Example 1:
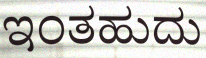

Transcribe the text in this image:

ಇಂತಹುದು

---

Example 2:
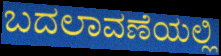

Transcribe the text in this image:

ಬದಲಾವಣೆಯಲ್ಲಿ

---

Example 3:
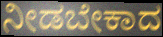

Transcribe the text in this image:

ನೀಡಬೇಕಾದ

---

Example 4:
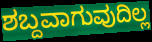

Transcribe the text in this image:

ಶಬ್ದವಾಗುವುದಿಲ್ಲ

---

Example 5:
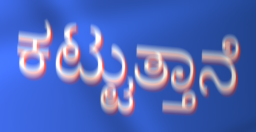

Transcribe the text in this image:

ಕಟ್ಟುತ್ತಾನೆ